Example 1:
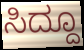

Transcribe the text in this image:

ಸಿದ್ದೂ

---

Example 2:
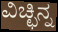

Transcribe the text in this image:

ವಿಚ್ಛಿನ್ನ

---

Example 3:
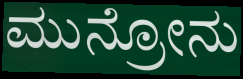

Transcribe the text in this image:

ಮುನ್ರೋನು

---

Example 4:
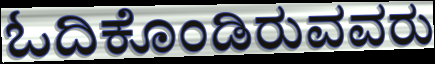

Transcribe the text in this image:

ಓದಿಕೊಂಡಿರುವವರು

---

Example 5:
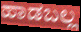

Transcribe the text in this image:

ಹಾಡಬಲ್ಲ